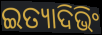
ଇତ୍ୟାଦିଭିଂ